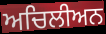
ਅਚਿਲੀਅਨ